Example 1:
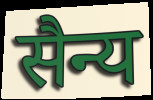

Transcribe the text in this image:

सैन्य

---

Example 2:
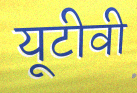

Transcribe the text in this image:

यूटीवी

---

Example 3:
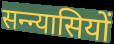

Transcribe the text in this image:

सन्न्यासियों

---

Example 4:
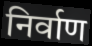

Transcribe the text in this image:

निर्वाण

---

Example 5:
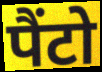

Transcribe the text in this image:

पैंटो